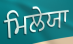
ਮਿਲੇਯਾ